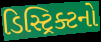
ડિસ્ટ્રિક્ટનો